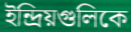
ইন্দ্রিয়গুলিকে